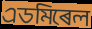
এডমিৰেল